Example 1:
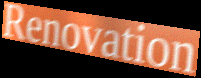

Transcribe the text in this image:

Renovation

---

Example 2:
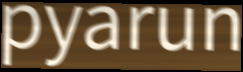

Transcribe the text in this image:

pyarun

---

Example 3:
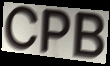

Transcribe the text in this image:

CPB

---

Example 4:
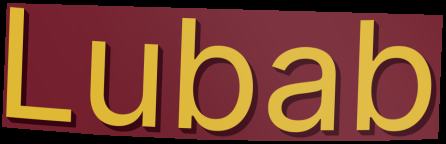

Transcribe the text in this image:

Lubab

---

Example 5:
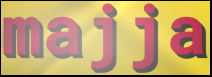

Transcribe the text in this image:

majja